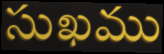
సుఖము